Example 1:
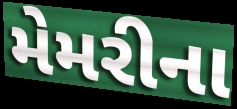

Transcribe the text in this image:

મેમરીના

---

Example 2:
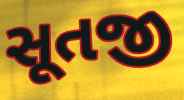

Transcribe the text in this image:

સૂતજી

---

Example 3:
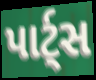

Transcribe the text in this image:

પાર્ટ્સ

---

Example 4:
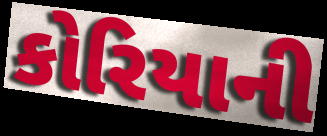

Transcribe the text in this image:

કોરિયાની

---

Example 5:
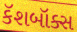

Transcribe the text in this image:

કૅશબૉક્સ